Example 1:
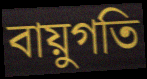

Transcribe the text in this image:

বায়ুগতি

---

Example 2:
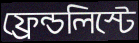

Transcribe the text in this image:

ফ্রেন্ডলিস্টে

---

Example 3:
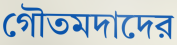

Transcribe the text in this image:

গৌতমদাদের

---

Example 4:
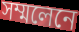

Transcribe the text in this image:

সম্মলেনে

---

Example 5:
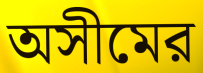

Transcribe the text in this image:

অসীমের